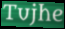
Tujhe